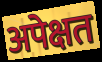
अपेक्षत